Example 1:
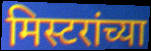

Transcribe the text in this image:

मिस्टरांच्या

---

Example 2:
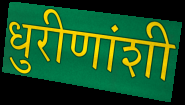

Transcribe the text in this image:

धुरीणांशी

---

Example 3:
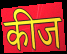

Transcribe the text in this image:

कीज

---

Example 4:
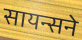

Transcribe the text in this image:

सायन्सने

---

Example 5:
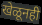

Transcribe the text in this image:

खेळूनही